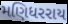
મણિધરરાય